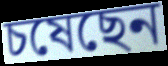
চষেছেন